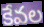
కేవల